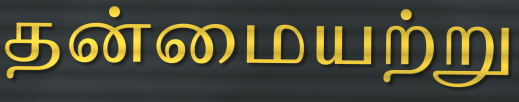
தன்மையற்று